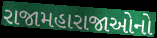
રાજામહારાજાઓનો